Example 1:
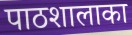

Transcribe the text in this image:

पाठशालाका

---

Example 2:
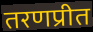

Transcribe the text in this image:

तरणप्रीत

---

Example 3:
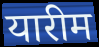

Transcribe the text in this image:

यारीम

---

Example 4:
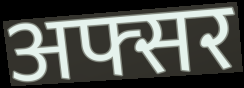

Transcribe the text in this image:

अफ्सर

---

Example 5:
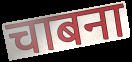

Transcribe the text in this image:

चाबना